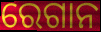
ରେଗାନ